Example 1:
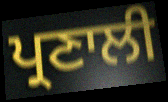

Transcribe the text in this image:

ਪ੍ਰਣਾਲੀ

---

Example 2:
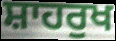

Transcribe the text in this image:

ਸ਼ਾਹਰੁਖ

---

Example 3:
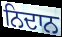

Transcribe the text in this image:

ਨਿਦਾਨ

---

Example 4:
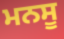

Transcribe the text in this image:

ਮਨਸੂ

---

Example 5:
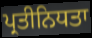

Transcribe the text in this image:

ਪ੍ਰਤੀਨਿਧਤਾ